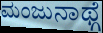
ಮಂಜುನಾಥ್ಗೆ